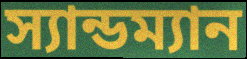
স্যান্ডম্যান